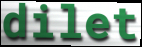
dilet